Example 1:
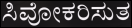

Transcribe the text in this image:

ಸಿವೋಕರಿಸುತ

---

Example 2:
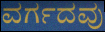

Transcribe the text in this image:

ವರ್ಗದವು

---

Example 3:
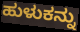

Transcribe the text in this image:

ಹುಳುಕನ್ನು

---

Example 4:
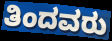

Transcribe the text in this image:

ತಿಂದವರು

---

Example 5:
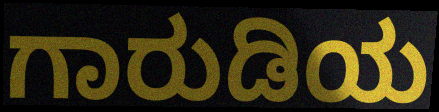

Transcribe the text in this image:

ಗಾರುಡಿಯ